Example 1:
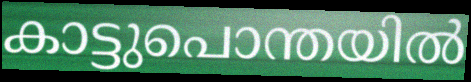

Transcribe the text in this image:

കാട്ടുപൊന്തയിൽ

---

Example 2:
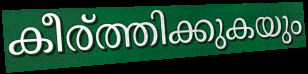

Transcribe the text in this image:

കീര്ത്തിക്കുകയും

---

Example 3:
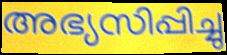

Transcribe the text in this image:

അഭ്യസിപ്പിച്ചു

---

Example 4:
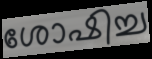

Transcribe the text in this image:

ശോഷിച്ച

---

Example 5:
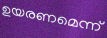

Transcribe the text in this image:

ഉയരണമെന്ന്